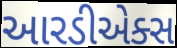
આરડીએક્સ